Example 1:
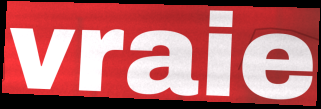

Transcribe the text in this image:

vraie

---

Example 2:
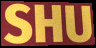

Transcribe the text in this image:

SHU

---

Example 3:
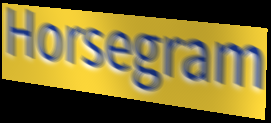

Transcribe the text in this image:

Horsegram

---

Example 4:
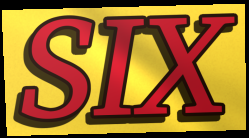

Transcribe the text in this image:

SIX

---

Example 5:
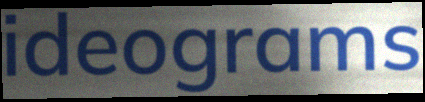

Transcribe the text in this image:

ideograms